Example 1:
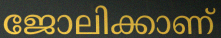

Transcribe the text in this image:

ജോലിക്കാണ്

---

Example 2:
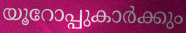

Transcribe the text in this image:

യൂറോപ്പുകാർക്കും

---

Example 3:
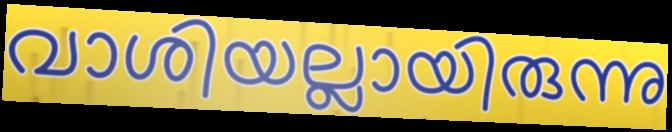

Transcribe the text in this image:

വാശിയല്ലായിരുന്നു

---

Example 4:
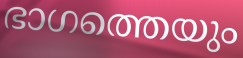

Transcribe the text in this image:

ഭാഗത്തെയും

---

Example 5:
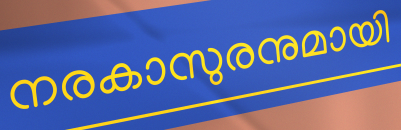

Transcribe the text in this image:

നരകാസുരനുമായി